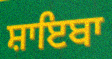
ਸ਼ਾਇਬਾ